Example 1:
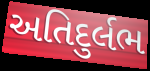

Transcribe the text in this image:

અતિદુર્લભ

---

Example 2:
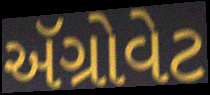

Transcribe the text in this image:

ઍગ્રોવેટ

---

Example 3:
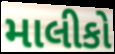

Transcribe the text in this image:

માલીકો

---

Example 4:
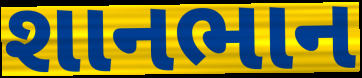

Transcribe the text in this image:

શાનભાન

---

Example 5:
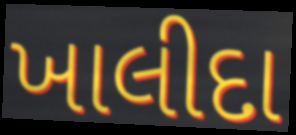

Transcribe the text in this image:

ખાલીદા